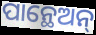
ପାନ୍ଥେଅନ୍